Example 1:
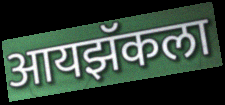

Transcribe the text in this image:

आयझॅकला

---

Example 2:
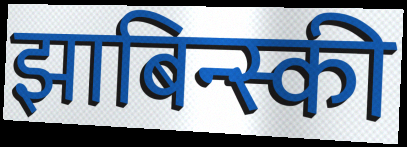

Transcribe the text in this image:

झाबिन्स्की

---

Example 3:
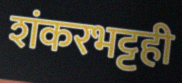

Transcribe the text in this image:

शंकरभट्टही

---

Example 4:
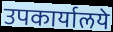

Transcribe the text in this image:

उपकार्यालये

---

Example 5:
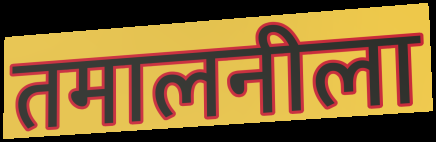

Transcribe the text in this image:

तमालनीला